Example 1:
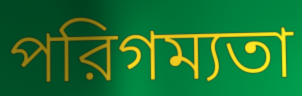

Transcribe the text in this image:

পরিগম্যতা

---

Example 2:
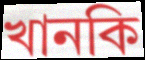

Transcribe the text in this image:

খানকি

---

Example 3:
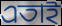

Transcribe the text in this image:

এতাই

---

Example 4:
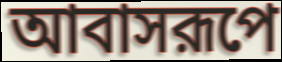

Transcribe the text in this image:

আবাসরূপে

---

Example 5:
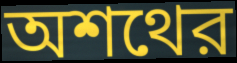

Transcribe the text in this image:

অশথের